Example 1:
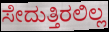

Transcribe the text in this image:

ಸೇದುತ್ತಿರಲಿಲ್ಲ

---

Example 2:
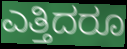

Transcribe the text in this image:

ಎತ್ತಿದರೂ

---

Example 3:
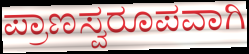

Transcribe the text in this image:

ಪ್ರಾಣಸ್ವರೂಪವಾಗಿ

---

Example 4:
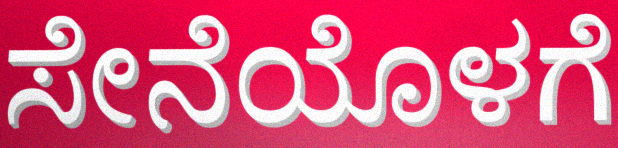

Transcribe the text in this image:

ಸೇನೆಯೊಳಗೆ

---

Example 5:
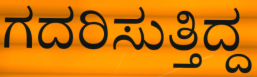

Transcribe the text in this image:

ಗದರಿಸುತ್ತಿದ್ದ